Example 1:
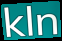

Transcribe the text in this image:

kln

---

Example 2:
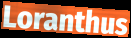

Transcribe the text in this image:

Loranthus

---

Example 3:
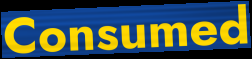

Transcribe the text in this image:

Consumed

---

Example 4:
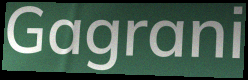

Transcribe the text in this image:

Gagrani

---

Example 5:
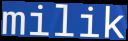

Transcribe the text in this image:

milik